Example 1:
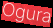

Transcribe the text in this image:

Ogura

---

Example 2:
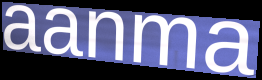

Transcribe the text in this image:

aanma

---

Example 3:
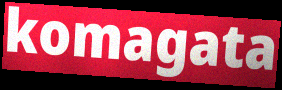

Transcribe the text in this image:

komagata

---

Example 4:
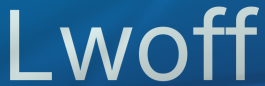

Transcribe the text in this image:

Lwoff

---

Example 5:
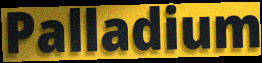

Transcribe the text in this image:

Palladium